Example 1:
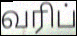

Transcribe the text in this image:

வரிப்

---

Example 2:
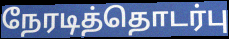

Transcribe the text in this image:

நேரடித்தொடர்பு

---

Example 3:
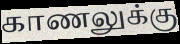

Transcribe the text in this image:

காணலுக்கு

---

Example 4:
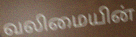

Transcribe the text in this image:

வலிமையின்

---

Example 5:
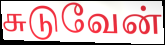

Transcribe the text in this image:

சுடுவேன்